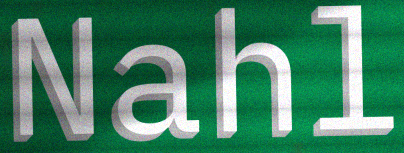
Nahl